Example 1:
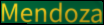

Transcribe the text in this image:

Mendoza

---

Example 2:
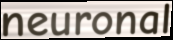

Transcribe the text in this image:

neuronal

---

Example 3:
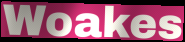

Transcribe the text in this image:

Woakes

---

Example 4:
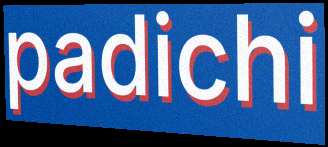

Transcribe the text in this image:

padichi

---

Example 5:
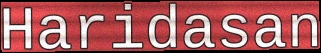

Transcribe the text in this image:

Haridasan